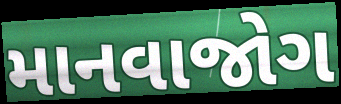
માનવાજોગ